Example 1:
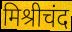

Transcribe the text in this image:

मिश्रीचंद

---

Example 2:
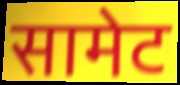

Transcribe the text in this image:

सामेट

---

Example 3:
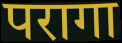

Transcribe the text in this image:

परागा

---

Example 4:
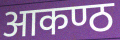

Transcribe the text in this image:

आकण्ठ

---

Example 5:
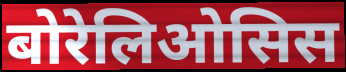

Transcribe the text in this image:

बोरेलिओसिस